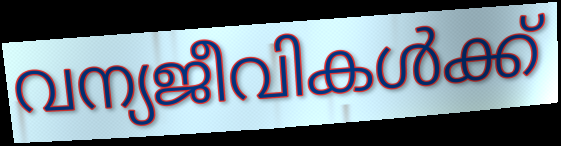
വന്യജീവികൾക്ക്